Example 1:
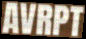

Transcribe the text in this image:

AVRPT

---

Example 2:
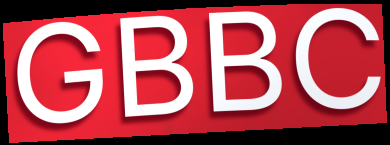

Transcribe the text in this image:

GBBC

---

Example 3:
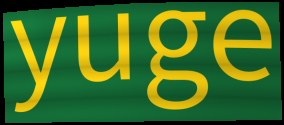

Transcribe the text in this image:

yuge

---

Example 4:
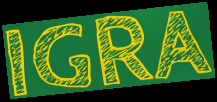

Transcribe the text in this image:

IGRA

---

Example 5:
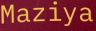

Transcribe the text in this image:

Maziya